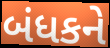
બંધકને